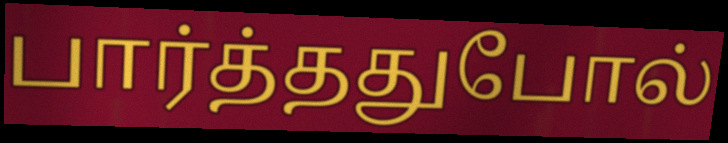
பார்த்ததுபோல்